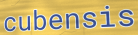
cubensis